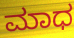
ಮಾಧ